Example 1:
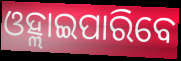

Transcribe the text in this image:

ଓହ୍ଲାଇପାରିବେ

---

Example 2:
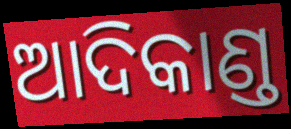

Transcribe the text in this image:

ଆଦିକାଣ୍ଡ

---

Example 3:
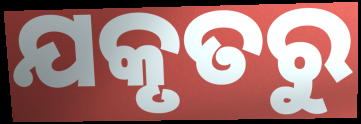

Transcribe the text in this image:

ଯକୃତରୁ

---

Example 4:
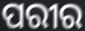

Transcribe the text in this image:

ପରୀର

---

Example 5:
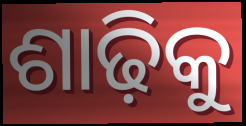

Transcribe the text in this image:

ଶାଢ଼ିକୁ